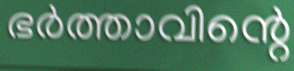
ഭർത്താവിന്റെ